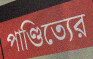
পাণ্ডিত্যের